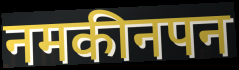
नमकीनपन